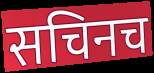
सचिनच